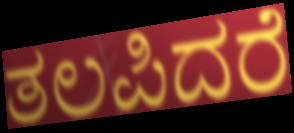
ತಲಪಿದರೆ